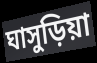
ঘাসুড়িয়া